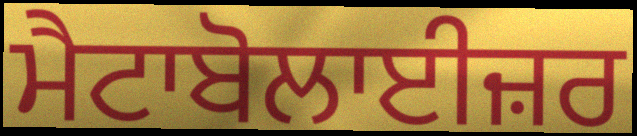
ਮੈਟਾਬੋਲਾਈਜ਼ਰ